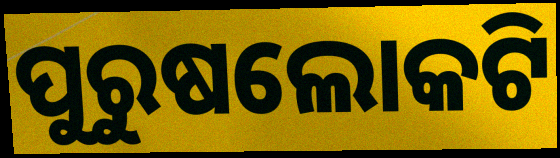
ପୁରୁଷଲୋକଟି